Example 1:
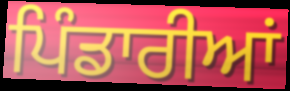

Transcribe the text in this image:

ਪਿੰਡਾਰੀਆਂ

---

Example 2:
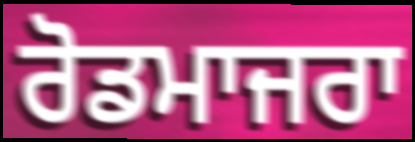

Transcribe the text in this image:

ਰੋਡਮਾਜਰਾ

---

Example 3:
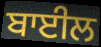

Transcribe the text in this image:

ਬਾਈਲ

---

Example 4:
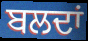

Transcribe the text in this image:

ਬਲਦਾਂ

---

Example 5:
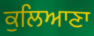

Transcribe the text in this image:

ਕੁਲਿਆਣਾ